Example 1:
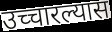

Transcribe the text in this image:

उच्चारल्यास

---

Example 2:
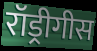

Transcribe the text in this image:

रॉड्रीगीस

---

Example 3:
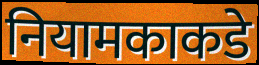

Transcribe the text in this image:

नियामकाकडे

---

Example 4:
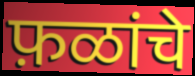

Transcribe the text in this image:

फ़ळांचे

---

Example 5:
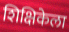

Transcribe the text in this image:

शिक्षिकेला